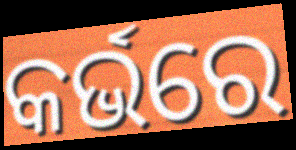
କର୍ଭରେ